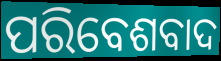
ପରିବେଶବାଦ